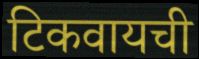
टिकवायची